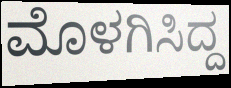
ಮೊಳಗಿಸಿದ್ದ